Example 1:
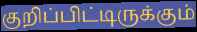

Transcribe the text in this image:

குறிப்பிட்டிருக்கும்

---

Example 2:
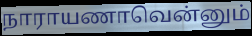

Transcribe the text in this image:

நாராயணாவென்னும்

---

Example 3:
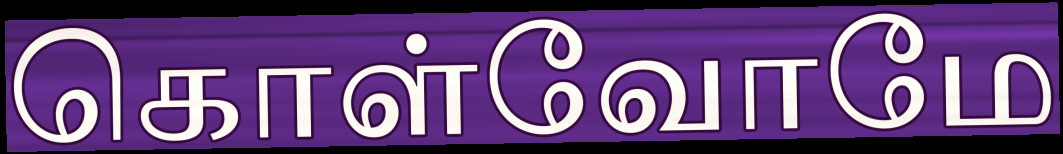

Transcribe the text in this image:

கொள்வோமே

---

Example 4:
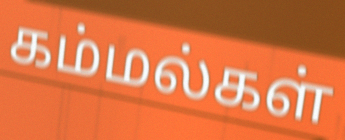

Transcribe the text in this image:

கம்மல்கள்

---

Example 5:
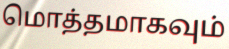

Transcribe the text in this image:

மொத்தமாகவும்